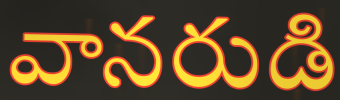
వానరుడి